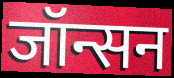
जॉन्सन